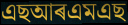
এছআৰএমএছ